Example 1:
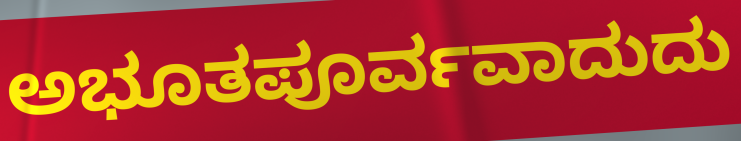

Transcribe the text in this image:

ಅಭೂತಪೂರ್ವವಾದುದು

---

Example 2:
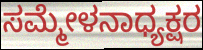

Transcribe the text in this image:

ಸಮ್ಮೇಳನಾಧ್ಯಕ್ಷರ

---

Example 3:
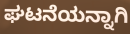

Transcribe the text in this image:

ಘಟನೆಯನ್ನಾಗಿ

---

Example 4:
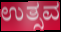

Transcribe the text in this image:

ಉತ್ಸವ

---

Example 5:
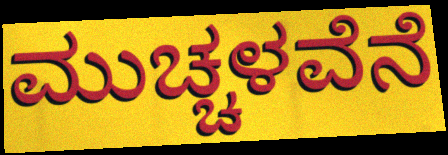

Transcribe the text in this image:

ಮುಚ್ಚಳವೆನೆ